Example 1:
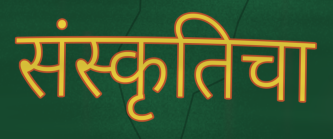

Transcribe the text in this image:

संस्कृतिचा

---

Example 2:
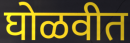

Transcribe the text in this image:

घोळवीत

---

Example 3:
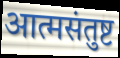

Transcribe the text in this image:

आत्मसंतुष्ट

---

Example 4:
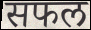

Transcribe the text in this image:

सफल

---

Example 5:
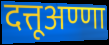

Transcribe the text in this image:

दत्तूअण्णा